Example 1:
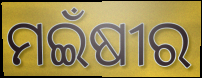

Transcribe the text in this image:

ମଇଁଷୀର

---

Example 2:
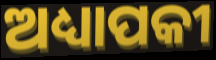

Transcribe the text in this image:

ଅଧ୍ୟାପକୀ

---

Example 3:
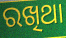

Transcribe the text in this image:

ରଖିଥା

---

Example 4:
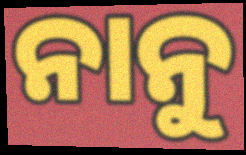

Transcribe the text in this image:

ନାନୁ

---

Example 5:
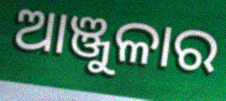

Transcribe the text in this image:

ଆଞ୍ଜୁଳାର